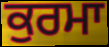
ਕੁਰਮਾ